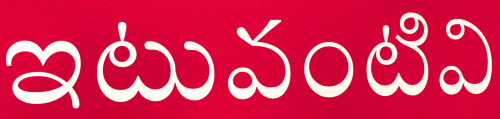
ఇటువంటివి